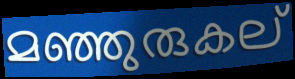
മഞ്ഞുരുകല്